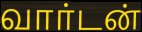
வார்டன்